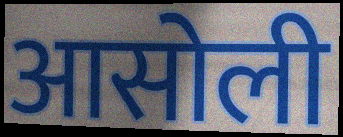
आसोली